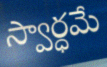
స్వార్ధమే